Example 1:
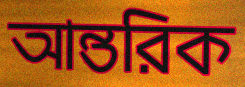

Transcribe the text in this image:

আন্তরিক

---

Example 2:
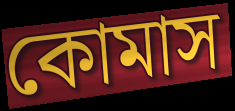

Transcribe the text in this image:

কোমাস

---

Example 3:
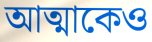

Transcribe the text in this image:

আত্মাকেও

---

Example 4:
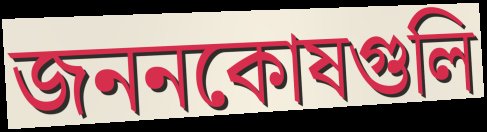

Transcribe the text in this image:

জননকোষগুলি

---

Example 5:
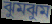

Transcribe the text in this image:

ঝুমঝুম